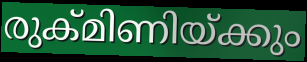
രുക്മിണിയ്ക്കും